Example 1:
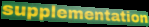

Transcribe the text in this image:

supplementation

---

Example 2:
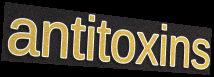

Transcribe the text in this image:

antitoxins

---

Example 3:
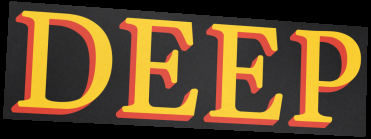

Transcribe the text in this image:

DEEP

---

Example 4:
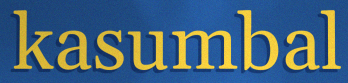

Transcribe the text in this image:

kasumbal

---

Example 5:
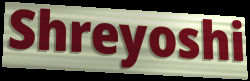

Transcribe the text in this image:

Shreyoshi